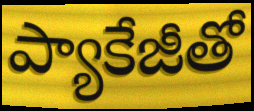
ప్యాకేజీతో